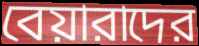
বেয়ারাদের